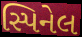
સ્પિનેલ